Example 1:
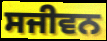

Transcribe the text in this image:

ਸਜੀਵਨ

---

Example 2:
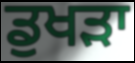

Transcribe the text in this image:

ਡੁਖੜਾ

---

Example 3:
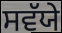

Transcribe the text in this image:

ਸਵੱਯੇ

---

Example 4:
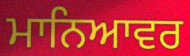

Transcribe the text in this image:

ਮਾਨਿਆਵਰ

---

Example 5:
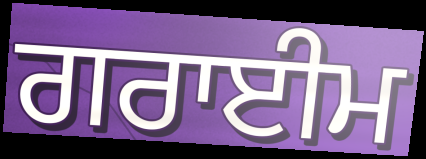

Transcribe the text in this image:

ਗਰਾਈਮ